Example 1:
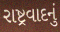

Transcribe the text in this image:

રાષ્ટ્રવાદનું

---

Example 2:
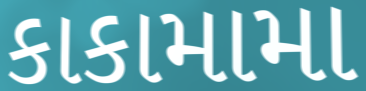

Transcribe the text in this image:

કાકામામા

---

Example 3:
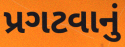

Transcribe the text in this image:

પ્રગટવાનું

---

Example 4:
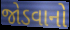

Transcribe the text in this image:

જોડવાનો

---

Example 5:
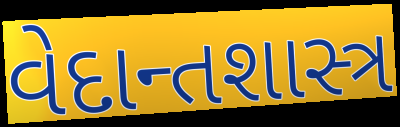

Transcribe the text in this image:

વેદાન્તશાસ્ત્ર